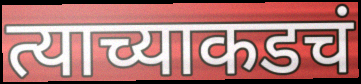
त्याच्याकडचं